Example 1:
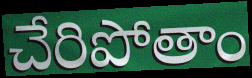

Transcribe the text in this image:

చేరిపోతాం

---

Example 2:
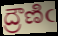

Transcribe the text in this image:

ద్రౌణిఁ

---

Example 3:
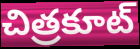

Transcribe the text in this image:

చిత్రకూట్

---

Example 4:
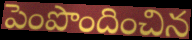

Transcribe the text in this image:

పెంపొందించిన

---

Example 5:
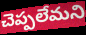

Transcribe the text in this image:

చెప్పలేమని